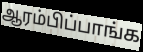
ஆரம்பிப்பாங்க